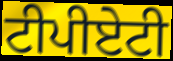
ਟੀਪੀਏਟੀ